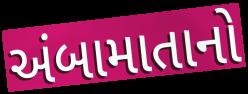
અંબામાતાનો